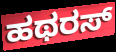
ಹಥರಸ್